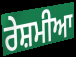
ਰੇਸ਼ਮੀਆ